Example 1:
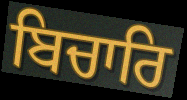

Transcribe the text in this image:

ਬਿਚਾਰਿ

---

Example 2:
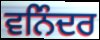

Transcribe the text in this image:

ਵਨਿੰਦਰ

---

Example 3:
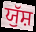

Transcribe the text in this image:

ਯੁੱਸ਼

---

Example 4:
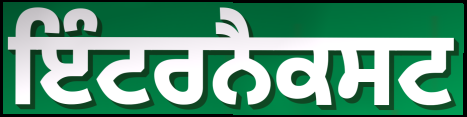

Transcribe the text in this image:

ਇੰਟਰਨੈਕਸਟ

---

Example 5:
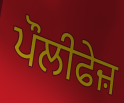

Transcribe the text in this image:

ਪੌਲੀਫੇਜ਼